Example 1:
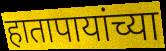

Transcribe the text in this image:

हातापायांच्या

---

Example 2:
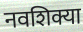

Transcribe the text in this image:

नवशिक्या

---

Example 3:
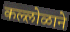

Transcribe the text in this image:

कल्लोळाने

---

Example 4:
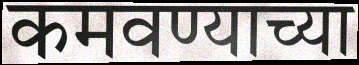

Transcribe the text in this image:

कमवण्याच्या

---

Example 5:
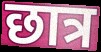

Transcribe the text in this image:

छात्र